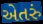
એતરું